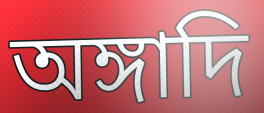
অঙ্গাদি